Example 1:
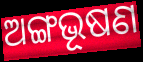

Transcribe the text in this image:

ଅଙ୍ଗଭୂଷଣ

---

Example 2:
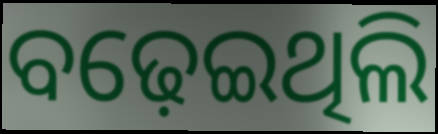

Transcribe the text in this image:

ବଢ଼େଇଥିଲି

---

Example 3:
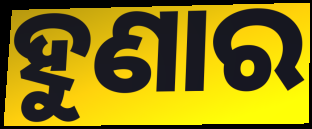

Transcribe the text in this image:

ହୁଣାର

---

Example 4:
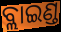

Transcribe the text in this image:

ବ୍ଲାଇଣ୍ଡ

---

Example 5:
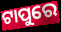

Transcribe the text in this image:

ଟାପୁରେ